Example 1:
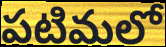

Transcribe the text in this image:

పటిమలో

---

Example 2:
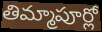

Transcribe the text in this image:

తిమ్మాపూర్లో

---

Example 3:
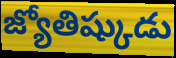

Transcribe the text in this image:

జ్యోతిష్కుడు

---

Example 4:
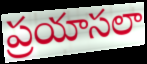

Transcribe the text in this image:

ప్రయాసలా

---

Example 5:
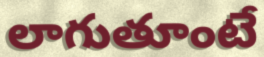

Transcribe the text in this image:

లాగుతూంటే